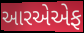
આરએએફ